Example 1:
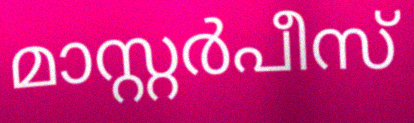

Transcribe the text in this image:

മാസ്റ്റർപീസ്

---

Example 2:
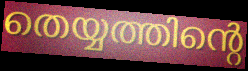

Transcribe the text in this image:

തെയ്യത്തിന്റെ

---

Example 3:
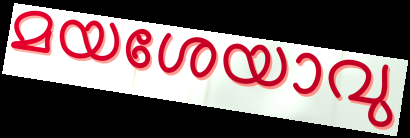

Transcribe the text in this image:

മയശേയാവു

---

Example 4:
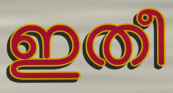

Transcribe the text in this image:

ഇതീ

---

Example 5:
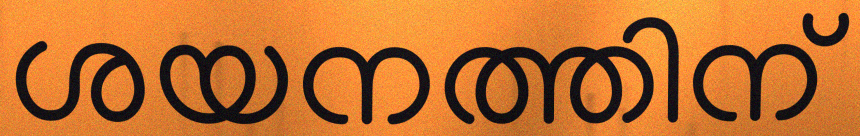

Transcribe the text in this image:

ശയനത്തിന്